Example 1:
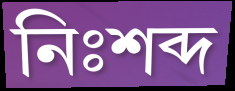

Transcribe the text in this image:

নিঃশব্দ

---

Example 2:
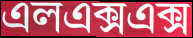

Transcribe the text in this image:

এলএক্সএক্স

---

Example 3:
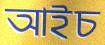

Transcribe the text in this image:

আইচ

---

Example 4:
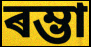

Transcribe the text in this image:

ৰম্ভা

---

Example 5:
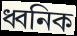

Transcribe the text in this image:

ধ্বনিক